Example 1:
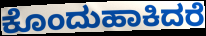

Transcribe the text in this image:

ಕೊಂದುಹಾಕಿದರೆ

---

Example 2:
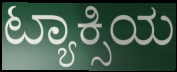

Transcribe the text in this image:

ಟ್ಯಾಕ್ಸಿಯ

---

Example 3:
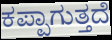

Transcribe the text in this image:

ಕಪ್ಪಾಗುತ್ತದೆ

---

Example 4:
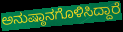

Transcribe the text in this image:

ಅನುಷ್ಠಾನಗೊಳಿಸಿದ್ದಾರೆ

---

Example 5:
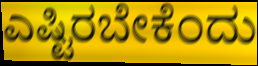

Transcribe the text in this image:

ಎಷ್ಟಿರಬೇಕೆಂದು